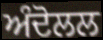
ਅੰਦੋਲਲ